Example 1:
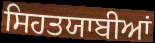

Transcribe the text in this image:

ਸਿਹਤਯਾਬੀਆਂ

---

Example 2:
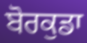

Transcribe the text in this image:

ਬੋਰਕੁਡਾ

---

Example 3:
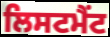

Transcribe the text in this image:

ਲਿਸਟਮੈਂਟ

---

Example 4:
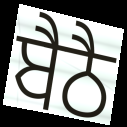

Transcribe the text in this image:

ਬੈਠੈ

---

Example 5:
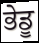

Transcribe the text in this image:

ਭੇਡੂ